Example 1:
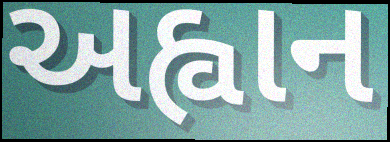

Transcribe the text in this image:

અહ્વાન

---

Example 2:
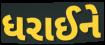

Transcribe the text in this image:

ધરાઈને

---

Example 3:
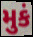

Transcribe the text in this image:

મુકં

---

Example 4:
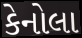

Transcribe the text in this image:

કેનોલા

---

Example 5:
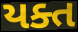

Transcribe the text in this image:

યક્ત